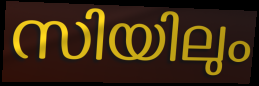
സിയിലും